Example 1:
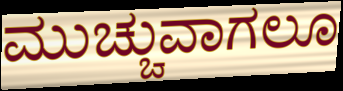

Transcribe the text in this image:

ಮುಚ್ಚುವಾಗಲೂ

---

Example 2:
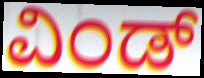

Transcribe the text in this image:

ವಿಂಡ್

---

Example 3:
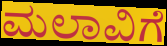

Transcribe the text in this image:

ಮಲಾವಿಗೆ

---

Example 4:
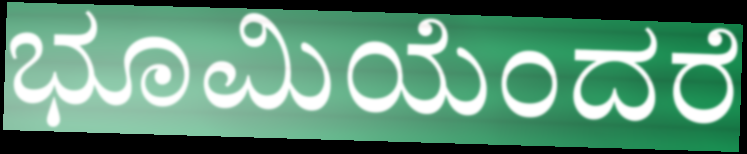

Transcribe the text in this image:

ಭೂಮಿಯೆಂದರೆ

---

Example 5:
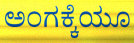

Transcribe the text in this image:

ಅಂಗಕ್ಕೆಯೂ